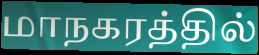
மாநகரத்தில்